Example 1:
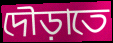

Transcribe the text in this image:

দৌড়াতে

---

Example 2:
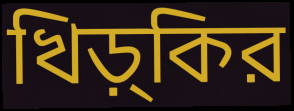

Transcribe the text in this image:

খিড়্‌কির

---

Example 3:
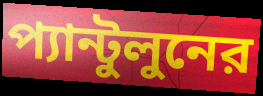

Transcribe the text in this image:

প্যান্টুলুনের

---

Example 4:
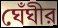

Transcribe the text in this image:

ঘেঁঘীর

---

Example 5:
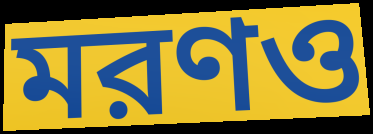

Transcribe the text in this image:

মরণও